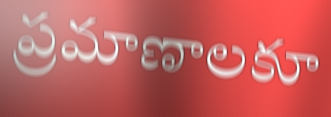
ప్రమాణాలకూ